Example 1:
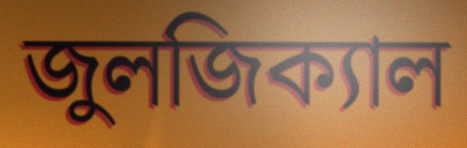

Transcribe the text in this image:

জুলজিক্যাল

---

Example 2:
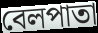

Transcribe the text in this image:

বেলপাতা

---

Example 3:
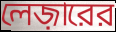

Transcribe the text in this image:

লেজ়ারের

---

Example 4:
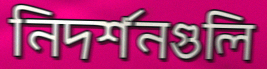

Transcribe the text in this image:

নিদর্শনগুলি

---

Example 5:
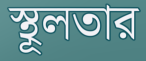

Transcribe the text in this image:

স্থূলতার